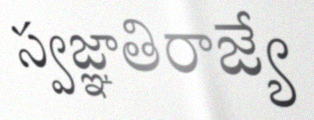
స్వజ్ఞాతిరాజ్యే